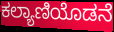
ಕಲ್ಯಾಣಿಯೊಡನೆ